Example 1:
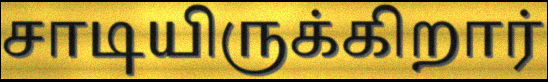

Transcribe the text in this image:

சாடியிருக்கிறார்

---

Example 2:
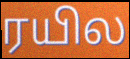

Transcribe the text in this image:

ரயில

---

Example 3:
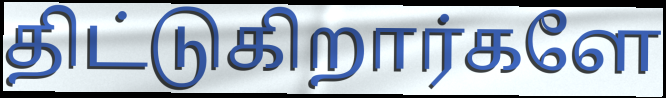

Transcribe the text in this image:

திட்டுகிறார்களே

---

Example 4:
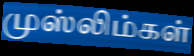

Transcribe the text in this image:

முஸ்லிம்கள்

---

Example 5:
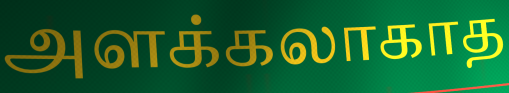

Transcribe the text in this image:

அளக்கலாகாத